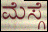
ಮೆಸ್ಗೆ